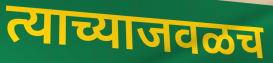
त्याच्याजवळच